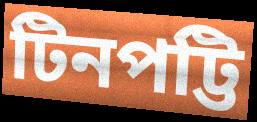
টিনপট্টি